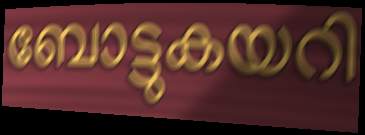
ബോട്ടുകയറി